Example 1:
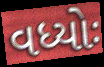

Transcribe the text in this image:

વધ્યોઃ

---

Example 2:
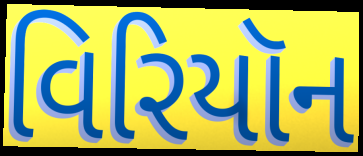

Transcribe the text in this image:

વિરિયૉન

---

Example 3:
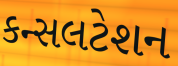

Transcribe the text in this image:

કન્સલટેશન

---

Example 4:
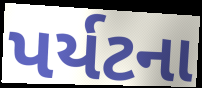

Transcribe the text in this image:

પર્યટના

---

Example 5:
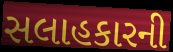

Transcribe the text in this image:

સલાહકારની